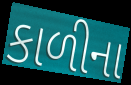
કાળીના